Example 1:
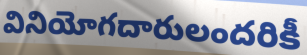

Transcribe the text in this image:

వినియోగదారులందరికీ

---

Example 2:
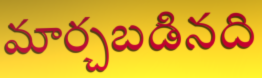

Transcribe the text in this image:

మార్చబడినది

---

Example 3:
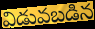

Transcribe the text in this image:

విడువబడిన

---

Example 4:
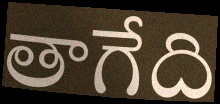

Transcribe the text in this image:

తాగేది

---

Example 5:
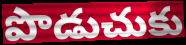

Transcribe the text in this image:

పొడుచుకు